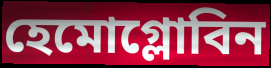
হেমোগ্লোবিন